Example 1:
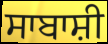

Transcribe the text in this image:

ਸਾਬਾਸ਼ੀ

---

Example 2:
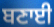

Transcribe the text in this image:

ਬਣਾਈ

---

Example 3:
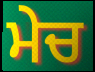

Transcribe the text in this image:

ਮੇਚ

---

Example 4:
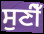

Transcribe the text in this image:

ਸੁਣੀਁ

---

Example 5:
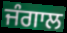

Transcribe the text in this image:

ਜੰਗਾਲ